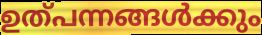
ഉത്പന്നങ്ങൾക്കും